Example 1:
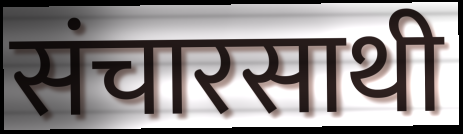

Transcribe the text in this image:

संचारसाथी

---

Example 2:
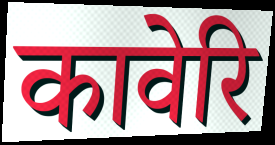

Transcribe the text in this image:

कावेरि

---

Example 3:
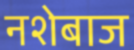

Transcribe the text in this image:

नशेबाज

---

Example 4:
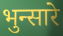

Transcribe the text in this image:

भुन्सारे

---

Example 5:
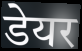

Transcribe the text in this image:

डेयर